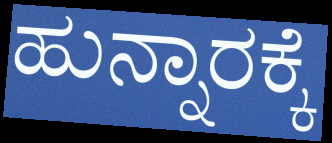
ಹುನ್ನಾರಕ್ಕೆ